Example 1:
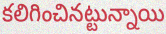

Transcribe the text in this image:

కలిగించినట్టున్నాయి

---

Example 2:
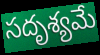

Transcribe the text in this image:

సదృశ్యమే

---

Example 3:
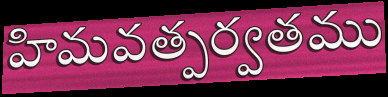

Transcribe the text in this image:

హిమవత్పర్వతము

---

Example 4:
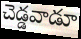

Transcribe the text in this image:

చెడ్డవాడూ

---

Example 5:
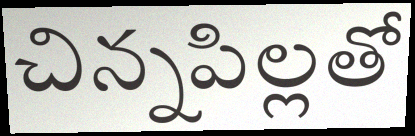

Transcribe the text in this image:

చిన్నపిల్లతో